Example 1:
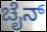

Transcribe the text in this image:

ಚೈನ್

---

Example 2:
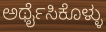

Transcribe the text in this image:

ಅರ್ಥೈಸಿಕೊಳ್ಳು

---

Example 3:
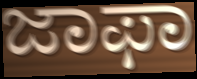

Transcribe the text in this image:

ಜಾಫಾ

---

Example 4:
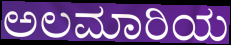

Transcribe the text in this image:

ಅಲಮಾರಿಯ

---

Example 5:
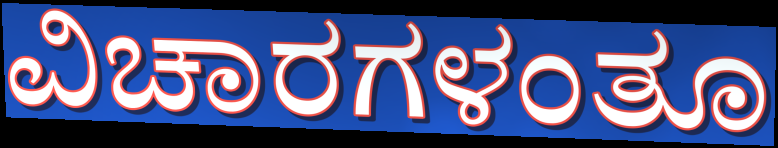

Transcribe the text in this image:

ವಿಚಾರಗಳಂತೂ